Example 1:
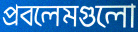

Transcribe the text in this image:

প্রবলেমগুলো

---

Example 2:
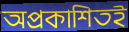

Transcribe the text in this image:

অপ্রকাশিতই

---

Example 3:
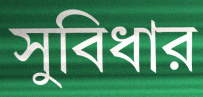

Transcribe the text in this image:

সুবিধার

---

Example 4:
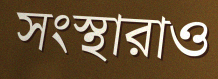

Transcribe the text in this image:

সংস্থারাও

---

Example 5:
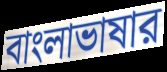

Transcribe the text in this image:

বাংলাভাষার